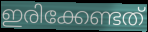
ഇരിക്കേണ്ടത്